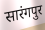
सारंगपुर